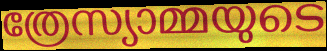
ത്രേസ്യാമ്മയുടെ